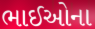
ભાઈઓના